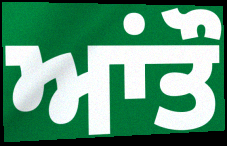
ਆਂਤੌ